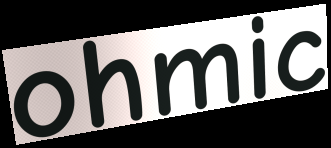
ohmic